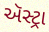
ઍસ્ટ્રા